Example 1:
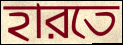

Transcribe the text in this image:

হারতে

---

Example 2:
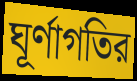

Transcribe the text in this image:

ঘূর্ণাগতির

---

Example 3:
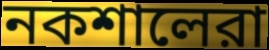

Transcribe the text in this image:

নকশালেরা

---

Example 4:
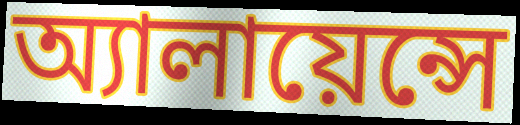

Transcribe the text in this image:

অ্যালায়েন্সে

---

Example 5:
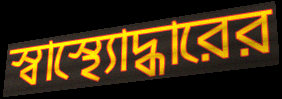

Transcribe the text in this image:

স্বাস্থ্যোদ্ধারের